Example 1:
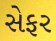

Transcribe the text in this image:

સેફર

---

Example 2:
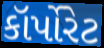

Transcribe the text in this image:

કૉર્પોરેટ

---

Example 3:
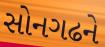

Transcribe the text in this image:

સોનગઢને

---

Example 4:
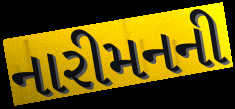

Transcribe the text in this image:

નારીમનની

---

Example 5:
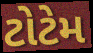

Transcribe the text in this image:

ટોટેમ